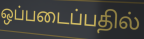
ஒப்படைப்பதில்